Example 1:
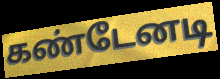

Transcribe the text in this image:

கண்டேனடி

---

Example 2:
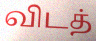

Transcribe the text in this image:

விடத்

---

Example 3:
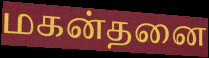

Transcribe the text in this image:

மகன்தனை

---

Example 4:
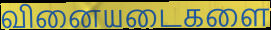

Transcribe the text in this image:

வினையடைகளை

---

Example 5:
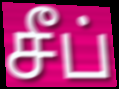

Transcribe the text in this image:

சீப்